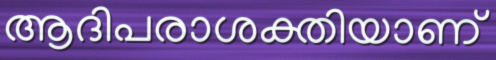
ആദിപരാശക്തിയാണ്